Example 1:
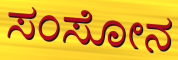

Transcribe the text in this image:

ಸಂಸೋನ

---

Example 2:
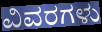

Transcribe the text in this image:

ವಿವರಗಳು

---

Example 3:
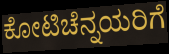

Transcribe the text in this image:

ಕೋಟಿಚೆನ್ನಯರಿಗೆ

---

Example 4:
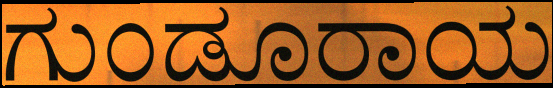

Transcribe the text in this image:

ಗುಂಡೂರಾಯ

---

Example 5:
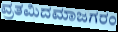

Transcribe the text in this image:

ವ್ರತಮಿದಮಾಜಗರಂ